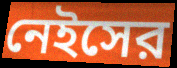
নেইসের